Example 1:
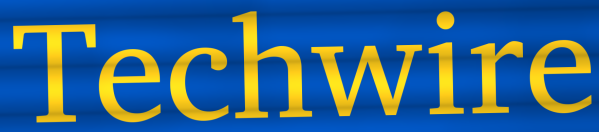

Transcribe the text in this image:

Techwire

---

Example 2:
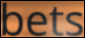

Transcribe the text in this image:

bets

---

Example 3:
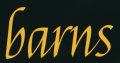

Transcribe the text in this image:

barns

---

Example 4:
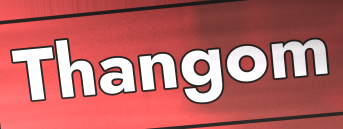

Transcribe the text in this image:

Thangom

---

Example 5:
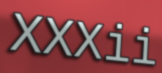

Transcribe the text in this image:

XXXii